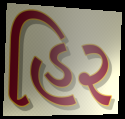
હિર